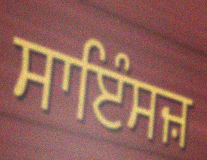
ਸਾਇੰਸਜ਼